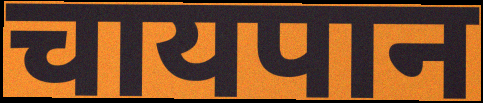
चायपान